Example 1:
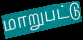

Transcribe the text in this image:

மாறுபட்டு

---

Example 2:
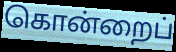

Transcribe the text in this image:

கொன்றைப்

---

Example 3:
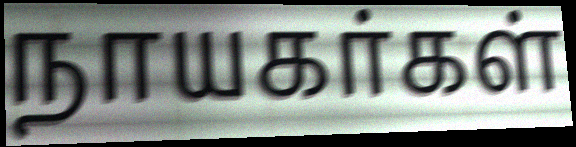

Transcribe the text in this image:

நாயகர்கள்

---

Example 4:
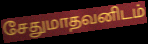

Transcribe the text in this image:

சேதுமாதவனிடம்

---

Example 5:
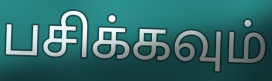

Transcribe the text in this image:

பசிக்கவும்